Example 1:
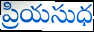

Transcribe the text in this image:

ప్రియసుధ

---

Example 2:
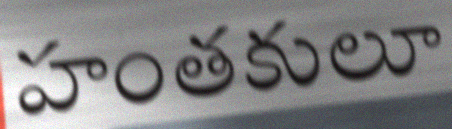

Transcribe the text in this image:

హంతకులూ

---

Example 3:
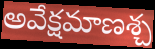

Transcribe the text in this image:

అవేక్షమాణశ్చ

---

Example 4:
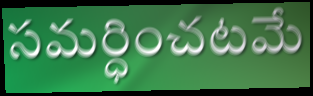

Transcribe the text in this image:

సమర్ధించటమే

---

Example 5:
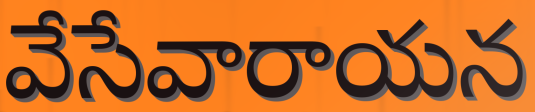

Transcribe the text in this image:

వేసేవారాయన